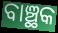
ବାଞ୍ଛକ